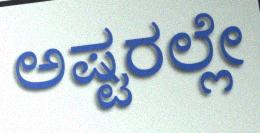
ಅಷ್ಟರಲ್ಲೇ